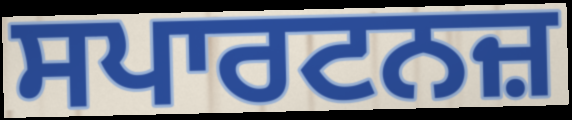
ਸਪਾਰਟਨਜ਼